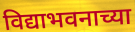
विद्याभवनाच्या